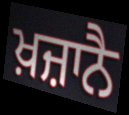
ਖ਼ਜ਼ਾਨੈ